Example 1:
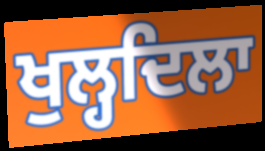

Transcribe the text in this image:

ਖੁਲ੍ਹਦਿਲਾ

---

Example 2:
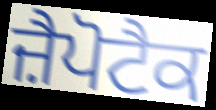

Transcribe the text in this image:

ਜ਼ੈਪੋਟੈਕ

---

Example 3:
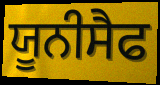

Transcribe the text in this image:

ਯੂਨੀਸੈਫ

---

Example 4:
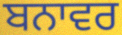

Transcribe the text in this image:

ਬਨਾਵਰ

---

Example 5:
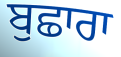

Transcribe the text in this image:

ਬੁਛਾਰਾ